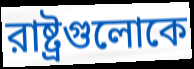
রাষ্ট্রগুলোকে